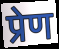
प्रेण